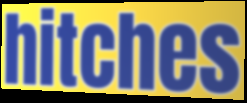
hitches